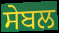
ਸੇਬਲ